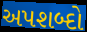
અપશબ્દો